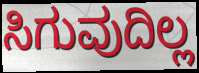
ಸಿಗುವುದಿಲ್ಲ